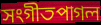
সংগীতপাগল